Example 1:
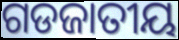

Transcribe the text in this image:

ଗଡଜାତୀୟ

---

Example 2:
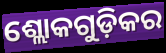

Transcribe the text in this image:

ଶ୍ଲୋକଗୁଡ଼ିକର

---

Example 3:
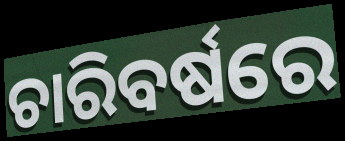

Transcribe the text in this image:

ଚାରିବର୍ଷରେ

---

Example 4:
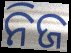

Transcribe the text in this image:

ନିଜ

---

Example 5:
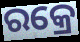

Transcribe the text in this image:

ରକ୍ରେ